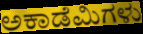
ಅಕಾಡೆಮಿಗಳು